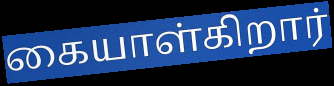
கையாள்கிறார்